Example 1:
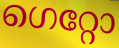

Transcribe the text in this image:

ഗെറ്റോ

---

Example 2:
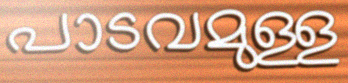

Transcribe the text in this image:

പാടവമുള്ള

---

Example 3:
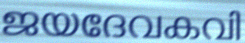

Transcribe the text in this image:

ജയദേവകവി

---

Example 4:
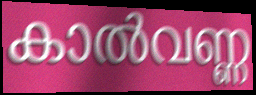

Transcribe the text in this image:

കാൽവണ്ണ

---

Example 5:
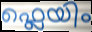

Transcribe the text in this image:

ഫ്ലെയിം